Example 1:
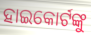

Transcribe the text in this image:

ହାଇକୋର୍ଟଙ୍କୁ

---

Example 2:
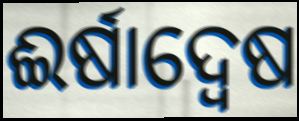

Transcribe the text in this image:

ଈର୍ଷାଦ୍ଵେଷ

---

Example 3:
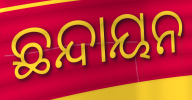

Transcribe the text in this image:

ଛନ୍ଦାୟନ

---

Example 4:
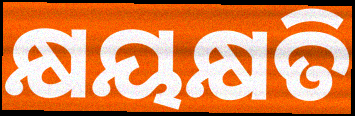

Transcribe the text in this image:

କ୍ଷୟକ୍ଷତି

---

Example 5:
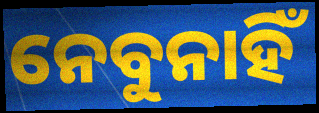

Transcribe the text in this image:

ନେବୁନାହିଁ